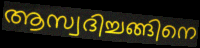
ആസ്വദിച്ചങ്ങിനെ